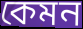
কেমন